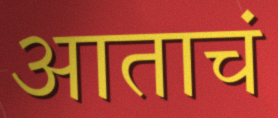
आताचं